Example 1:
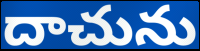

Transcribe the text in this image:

దాచును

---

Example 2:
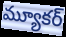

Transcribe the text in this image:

మ్యూకర్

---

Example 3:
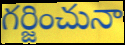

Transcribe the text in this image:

గర్జించునా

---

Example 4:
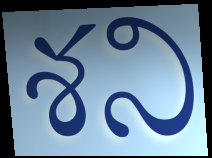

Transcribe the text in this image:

శని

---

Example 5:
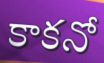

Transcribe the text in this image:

కాకనో